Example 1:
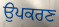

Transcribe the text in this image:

ਉਪਕਰਣ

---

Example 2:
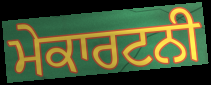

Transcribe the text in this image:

ਮੇਕਾਰਟਨੀ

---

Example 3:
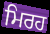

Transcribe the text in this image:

ਮਿਰਹ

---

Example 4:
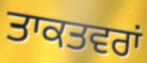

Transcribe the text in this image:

ਤਾਕਤਵਰਾਂ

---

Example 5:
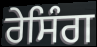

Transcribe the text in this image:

ਰੇਸਿੰਗ